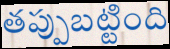
తప్పుబట్టింది